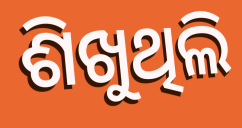
ଶିଖୁଥିଲି